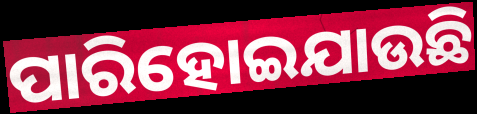
ପାରିହୋଇଯାଉଛି